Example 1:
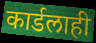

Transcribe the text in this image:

कार्डलाही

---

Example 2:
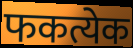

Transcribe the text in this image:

फकत्येक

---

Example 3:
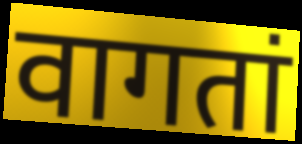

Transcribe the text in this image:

वागतां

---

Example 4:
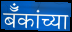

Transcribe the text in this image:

बॅँकांच्या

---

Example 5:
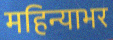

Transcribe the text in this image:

महिन्याभर